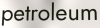
petroleum